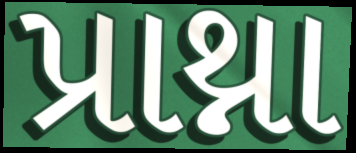
પ્રાથ્ના